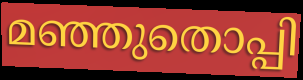
മഞ്ഞുതൊപ്പി